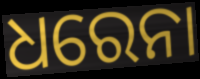
ଧରେନା